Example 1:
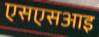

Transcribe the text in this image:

एसएसआइ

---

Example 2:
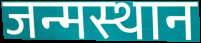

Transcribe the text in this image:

जन्मस्थान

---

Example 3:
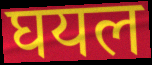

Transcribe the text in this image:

घयल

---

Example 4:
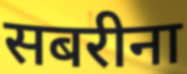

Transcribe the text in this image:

सबरीना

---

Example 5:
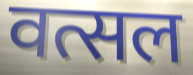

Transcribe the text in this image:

वत्सल